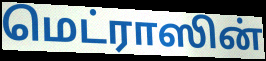
மெட்ராஸின்